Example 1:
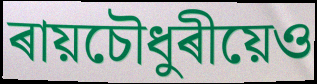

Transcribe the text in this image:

ৰায়চৌধুৰীয়েও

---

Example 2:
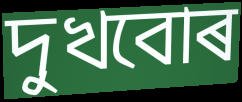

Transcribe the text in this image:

দুখবোৰ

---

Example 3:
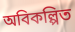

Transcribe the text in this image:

অবিকল্পিত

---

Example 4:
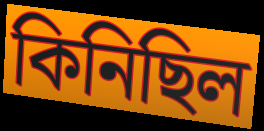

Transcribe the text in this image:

কিনিছিল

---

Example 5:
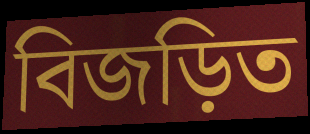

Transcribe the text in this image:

বিজড়িত